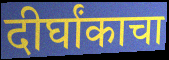
दीर्घांकाचा